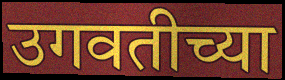
उगवतीच्या